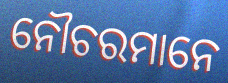
ନୌଚରମାନେ